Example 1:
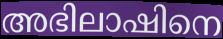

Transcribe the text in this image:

അഭിലാഷിനെ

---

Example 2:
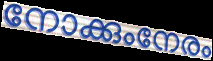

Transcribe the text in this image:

നോക്കുംനേരം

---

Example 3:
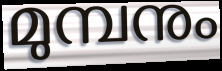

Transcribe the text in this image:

മുമ്പനും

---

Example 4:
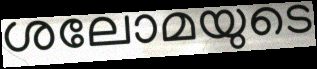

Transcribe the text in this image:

ശലോമയുടെ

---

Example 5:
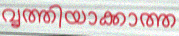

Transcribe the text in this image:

വൃത്തിയാക്കാത്ത